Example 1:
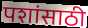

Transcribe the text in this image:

पशांसाठी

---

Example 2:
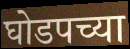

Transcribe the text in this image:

घोडपच्या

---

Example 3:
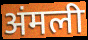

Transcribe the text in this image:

अंमली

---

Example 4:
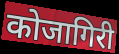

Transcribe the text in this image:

कोजागिरी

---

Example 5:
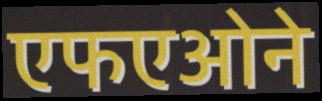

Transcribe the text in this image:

एफएओने